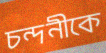
চন্দনীকে